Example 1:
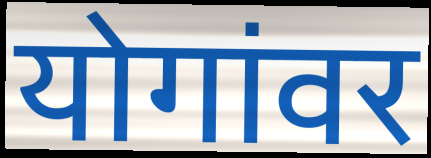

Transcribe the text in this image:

योगांवर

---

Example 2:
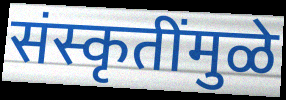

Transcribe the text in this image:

संस्कृतींमुळे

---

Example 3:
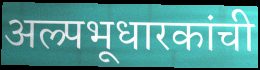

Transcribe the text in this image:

अल्पभूधारकांची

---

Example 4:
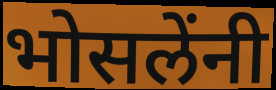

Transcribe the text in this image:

भोसलेंनी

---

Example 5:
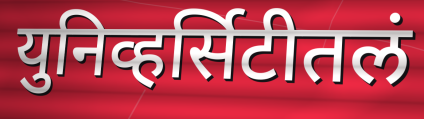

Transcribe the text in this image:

युनिव्हर्सिटीतलं